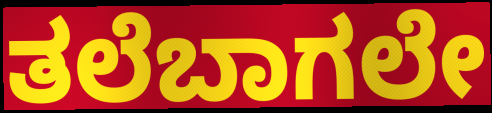
ತಲೆಬಾಗಲೇ